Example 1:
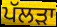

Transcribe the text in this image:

ਪੱਲੜਾ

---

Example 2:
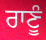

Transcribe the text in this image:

ਰਾਣੂੰ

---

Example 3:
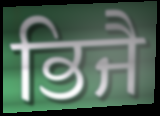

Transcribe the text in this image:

ਭਿਜੈ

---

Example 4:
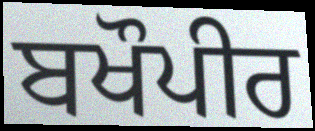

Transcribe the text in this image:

ਬਖੌਪੀਰ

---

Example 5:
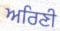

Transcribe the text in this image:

ਅਰਿਣੀ